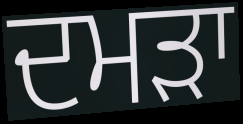
ਦਮੜਾ